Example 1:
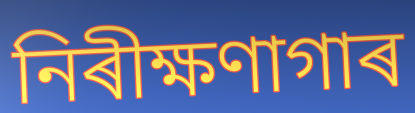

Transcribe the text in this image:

নিৰীক্ষণাগাৰ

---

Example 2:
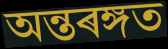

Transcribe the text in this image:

অন্তৰঙ্গত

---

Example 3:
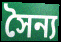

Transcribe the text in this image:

সৈন্য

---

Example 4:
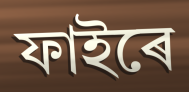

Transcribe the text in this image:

ফাইৰে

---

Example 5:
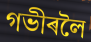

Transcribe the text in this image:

গভীৰলৈ